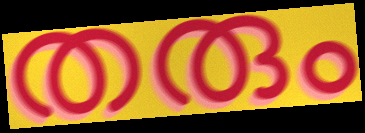
തരും